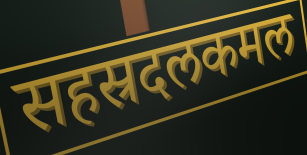
सहस्रदलकमल